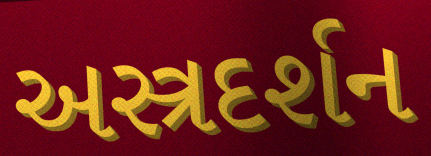
અસ્ત્રદર્શન